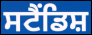
ਸਟੈਂਡਿਸ਼